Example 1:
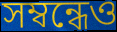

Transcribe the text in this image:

সম্বন্ধেও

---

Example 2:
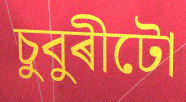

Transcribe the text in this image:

চুবুৰীটো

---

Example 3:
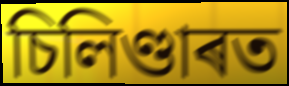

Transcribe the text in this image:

চিলিণ্ডাৰত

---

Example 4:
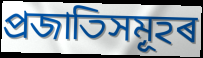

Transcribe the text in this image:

প্ৰজাতিসমূহৰ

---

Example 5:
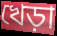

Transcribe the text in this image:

খেড়া